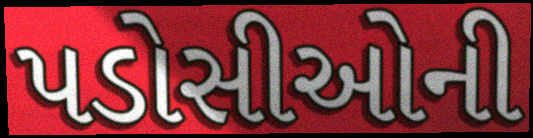
પડોસીઓની